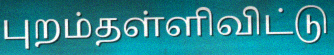
புறம்தள்ளிவிட்டு